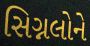
સિગ્નલોને